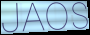
JAOS